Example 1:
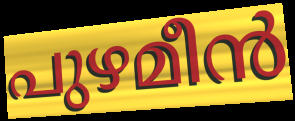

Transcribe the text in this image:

പുഴമീൻ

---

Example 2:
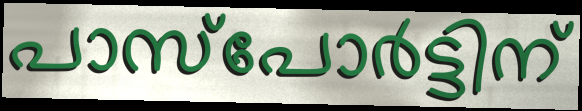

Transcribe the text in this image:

പാസ്പോർട്ടിന്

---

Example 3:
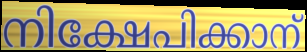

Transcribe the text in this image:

നിക്ഷേപിക്കാന്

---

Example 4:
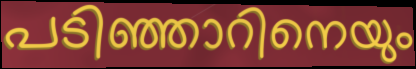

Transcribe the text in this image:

പടിഞ്ഞാറിനെയും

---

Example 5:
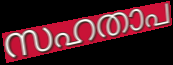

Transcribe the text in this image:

സഹതാപ